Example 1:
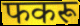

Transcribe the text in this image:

फकरू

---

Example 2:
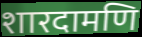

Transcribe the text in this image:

शारदामणि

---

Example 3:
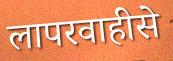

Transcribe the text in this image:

लापरवाहीसे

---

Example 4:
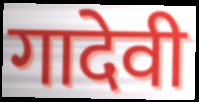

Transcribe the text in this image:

गादेवी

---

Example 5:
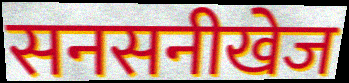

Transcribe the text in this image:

सनसनीखेज